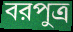
বরপুত্র